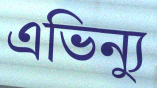
এভিন্যু